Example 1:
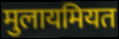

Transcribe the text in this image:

मुलायमियत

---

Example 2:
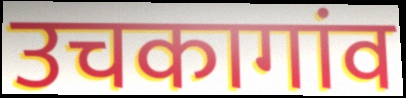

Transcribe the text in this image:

उचकागांव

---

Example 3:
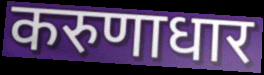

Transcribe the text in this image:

करुणाधार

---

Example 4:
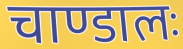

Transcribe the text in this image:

चाण्डालः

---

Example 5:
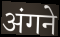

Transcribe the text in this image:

अंगने